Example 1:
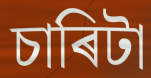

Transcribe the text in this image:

চাৰিটা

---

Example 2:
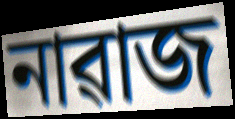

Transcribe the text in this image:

নাৱাজ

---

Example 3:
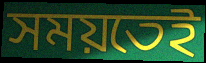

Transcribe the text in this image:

সময়তেই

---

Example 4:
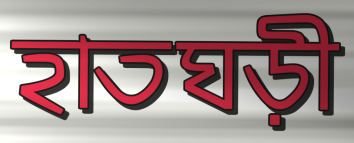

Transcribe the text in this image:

হাতঘড়ী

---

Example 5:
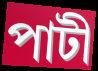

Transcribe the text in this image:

পাটী